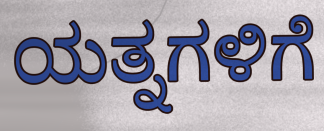
ಯತ್ನಗಳಿಗೆ